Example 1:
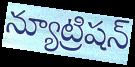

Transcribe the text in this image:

న్యూట్రిషన్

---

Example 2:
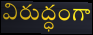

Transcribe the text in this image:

విరుద్ధంగా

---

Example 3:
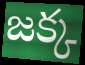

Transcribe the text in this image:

జక్క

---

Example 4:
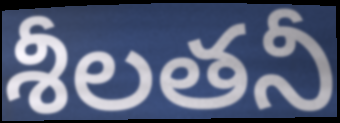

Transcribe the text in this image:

శీలతనీ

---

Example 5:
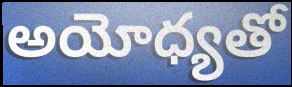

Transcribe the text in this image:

అయోధ్యతో